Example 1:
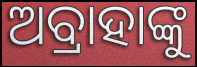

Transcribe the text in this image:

ଅବ୍ରାହାଙ୍କୁ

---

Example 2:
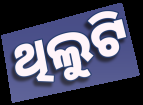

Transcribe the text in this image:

ଥିଲୁଟି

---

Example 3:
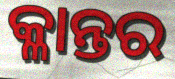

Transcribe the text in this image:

କ୍ଳାନ୍ତର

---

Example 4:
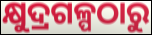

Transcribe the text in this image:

କ୍ଷୁଦ୍ରଗଳ୍ପଠାରୁ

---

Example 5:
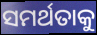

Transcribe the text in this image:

ସମର୍ଥତାକୁ